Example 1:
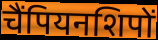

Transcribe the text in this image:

चैंपियनशिपों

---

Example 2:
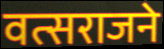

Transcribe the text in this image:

वत्सराजने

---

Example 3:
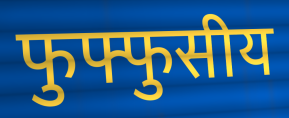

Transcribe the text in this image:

फुफ्फुसीय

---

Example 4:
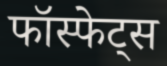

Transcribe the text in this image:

फॉस्फेट्स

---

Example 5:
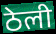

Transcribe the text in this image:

ठेली